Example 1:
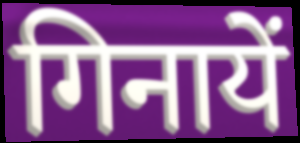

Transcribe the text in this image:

गिनायें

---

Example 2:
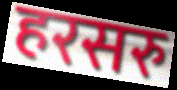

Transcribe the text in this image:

हरसरु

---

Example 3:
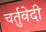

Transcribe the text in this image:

चर्तुवेदी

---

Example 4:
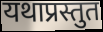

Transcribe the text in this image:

यथाप्रस्तुत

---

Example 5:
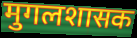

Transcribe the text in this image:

मुगलशासक